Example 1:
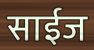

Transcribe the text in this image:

साईज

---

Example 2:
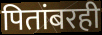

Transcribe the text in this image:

पितांबरही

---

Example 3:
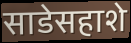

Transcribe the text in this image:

साडेसहाशे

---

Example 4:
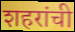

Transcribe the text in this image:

शहरांची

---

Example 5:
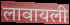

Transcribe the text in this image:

लावायली